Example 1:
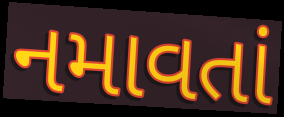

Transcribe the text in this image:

નમાવતાં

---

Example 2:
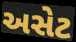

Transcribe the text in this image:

અસેટ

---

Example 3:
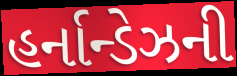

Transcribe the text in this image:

હર્નાન્ડેઝની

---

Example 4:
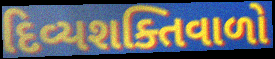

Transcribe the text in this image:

દિવ્યશક્તિવાળો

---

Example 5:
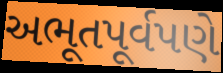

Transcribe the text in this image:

અભૂતપૂર્વપણે